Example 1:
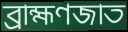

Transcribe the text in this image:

ব্রাহ্মণজাত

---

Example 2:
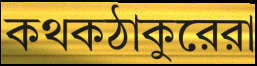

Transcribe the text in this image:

কথকঠাকুরেরা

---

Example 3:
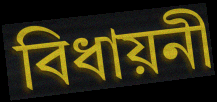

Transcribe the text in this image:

বিধায়নী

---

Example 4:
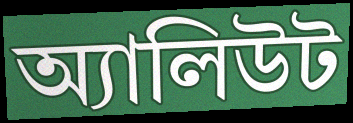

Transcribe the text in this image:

অ্যালিউট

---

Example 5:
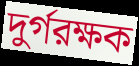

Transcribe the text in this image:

দুর্গরক্ষক